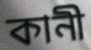
কানী